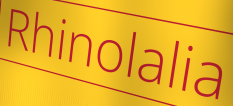
Rhinolalia